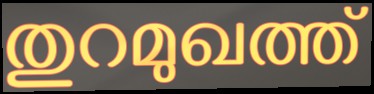
തുറമുഖത്ത്